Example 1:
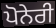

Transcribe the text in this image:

ਪੋਨੇਰੀ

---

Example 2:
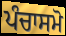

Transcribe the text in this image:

ਪੰਚਾਸਮੋ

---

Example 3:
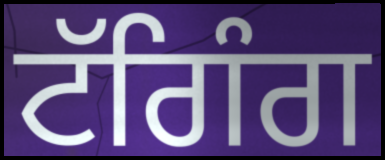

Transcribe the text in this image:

ਟੱਗਿੰਗ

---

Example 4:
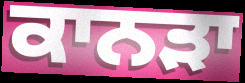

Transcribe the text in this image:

ਕਾਨੜਾ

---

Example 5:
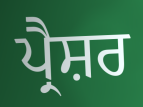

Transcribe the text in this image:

ਪ੍ਰੈਸ਼ਰ